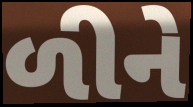
ળીને